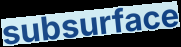
subsurface